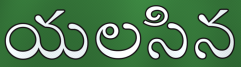
యలసిన